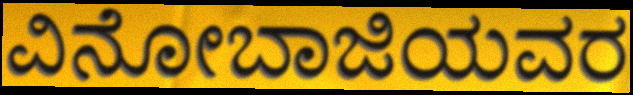
ವಿನೋಬಾಜಿಯವರ